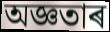
অজ্ঞতাৰ